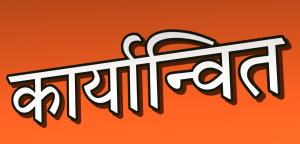
कार्यान्वित